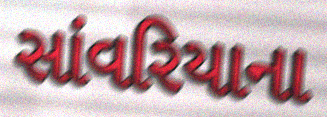
સાંવરિયાના